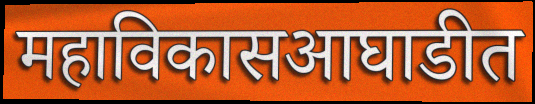
महाविकासआघाडीत